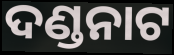
ଦଣ୍ଡନାଟ